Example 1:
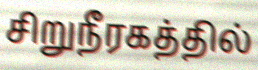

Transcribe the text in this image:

சிறுநீரகத்தில்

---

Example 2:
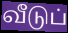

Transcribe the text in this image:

வீடுப்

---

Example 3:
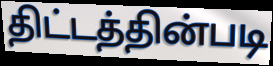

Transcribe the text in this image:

திட்டத்தின்படி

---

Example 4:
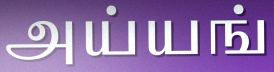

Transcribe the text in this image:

அய்யங்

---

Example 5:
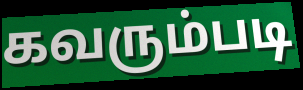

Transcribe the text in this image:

கவரும்படி